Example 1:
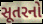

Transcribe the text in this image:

સૂતરનો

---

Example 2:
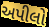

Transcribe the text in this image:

અપીલો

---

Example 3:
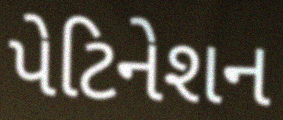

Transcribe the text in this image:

પેટિનેશન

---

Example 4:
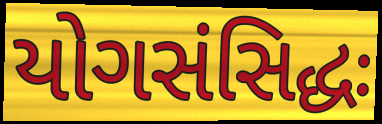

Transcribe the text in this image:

યોગસંસિદ્ધઃ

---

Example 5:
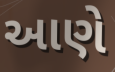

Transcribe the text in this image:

આણે